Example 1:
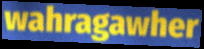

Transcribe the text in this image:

wahragawher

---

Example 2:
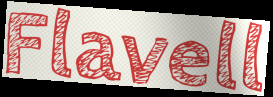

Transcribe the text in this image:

Flavell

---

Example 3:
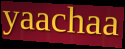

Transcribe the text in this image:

yaachaa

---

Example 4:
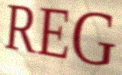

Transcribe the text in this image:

REG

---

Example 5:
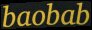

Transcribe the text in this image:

baobab